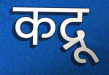
कद्रू